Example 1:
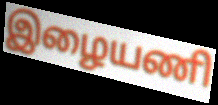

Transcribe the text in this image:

இழையணி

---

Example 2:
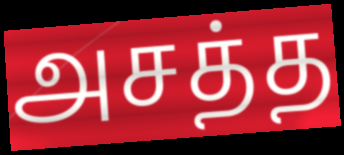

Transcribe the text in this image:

அசத்த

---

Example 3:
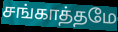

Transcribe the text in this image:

சங்காத்தமே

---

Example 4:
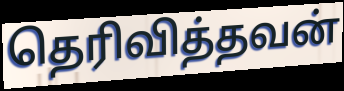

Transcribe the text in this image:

தெரிவித்தவன்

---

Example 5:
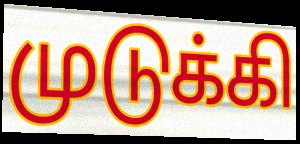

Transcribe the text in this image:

முடுக்கி